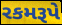
રકમરૂપે